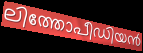
ലിത്തോപീഡിയൻ